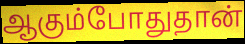
ஆகும்போதுதான்